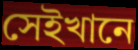
সেইখানে